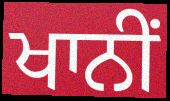
ਖਾਨੀਂ